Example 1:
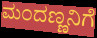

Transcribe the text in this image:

ಮಂದಣ್ಣನಿಗೆ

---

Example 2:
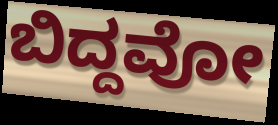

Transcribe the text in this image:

ಬಿದ್ದವೋ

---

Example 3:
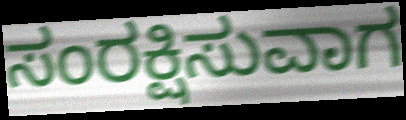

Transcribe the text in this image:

ಸಂರಕ್ಷಿಸುವಾಗ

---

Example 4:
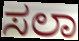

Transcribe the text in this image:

ಸಲಾ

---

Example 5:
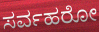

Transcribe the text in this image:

ಸರ್ವಹರೋ